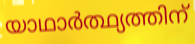
യാഥാർത്ഥ്യത്തിന്